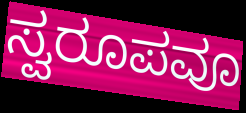
ಸ್ವರೂಪವೂ